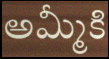
అమ్మీకి